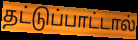
தட்டுப்பாட்டால்